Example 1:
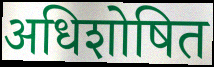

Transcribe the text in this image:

अधिशोषित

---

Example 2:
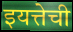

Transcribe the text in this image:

इयत्तेची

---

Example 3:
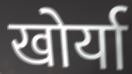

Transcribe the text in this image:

खोर्या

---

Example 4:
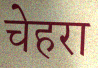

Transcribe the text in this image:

चेहरा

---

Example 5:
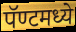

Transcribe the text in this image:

पॅण्टमध्ये